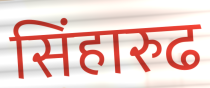
सिंहारुढ